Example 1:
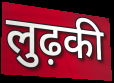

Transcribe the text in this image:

लुढ़की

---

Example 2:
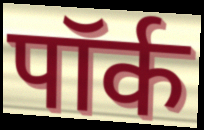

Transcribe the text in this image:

पॉर्क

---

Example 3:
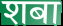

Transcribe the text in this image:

शबा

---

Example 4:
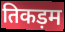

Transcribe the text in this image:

तिकड़म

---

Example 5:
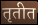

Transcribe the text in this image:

तृतीत